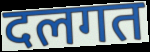
दलगत